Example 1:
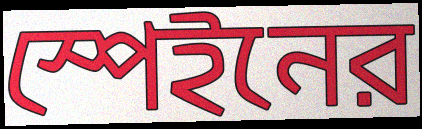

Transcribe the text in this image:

স্পেইনের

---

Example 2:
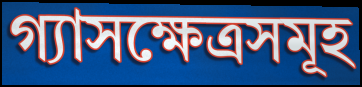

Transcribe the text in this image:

গ্যাসক্ষেত্রসমূহ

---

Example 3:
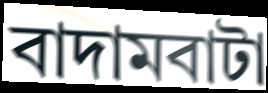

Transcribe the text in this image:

বাদামবাটা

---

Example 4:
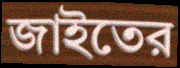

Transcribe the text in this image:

জাইতের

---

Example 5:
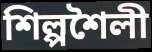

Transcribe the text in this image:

শিল্পশৈলী